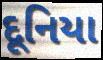
દૂનિયા